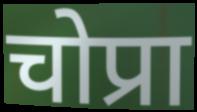
चोप्रा